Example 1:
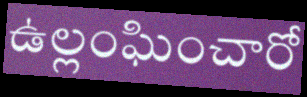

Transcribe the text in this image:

ఉల్లంఘించారో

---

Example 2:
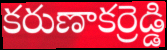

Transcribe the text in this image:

కరుణాకర్రెడ్డి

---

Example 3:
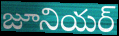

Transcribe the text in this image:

జూనియర్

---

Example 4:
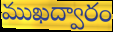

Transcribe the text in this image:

ముఖద్వారం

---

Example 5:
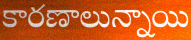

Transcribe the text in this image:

కారణాలున్నాయి